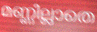
മണ്ണില്ലാതെ